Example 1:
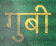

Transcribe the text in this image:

गुबी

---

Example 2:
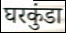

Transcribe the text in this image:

घरकुंडा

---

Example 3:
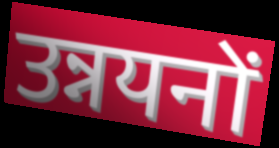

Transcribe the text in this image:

उन्नयनों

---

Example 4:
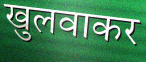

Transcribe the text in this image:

खुलवाकर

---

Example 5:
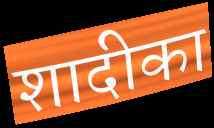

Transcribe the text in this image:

शादीका